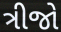
ત્રીજો